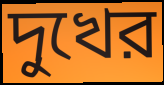
দুখের